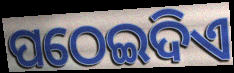
ପଠେଇଦିଏ